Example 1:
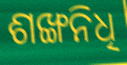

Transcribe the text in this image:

ଶଙ୍ଖନିଧି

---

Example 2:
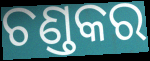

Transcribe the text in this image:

ଚଣ୍ଡକର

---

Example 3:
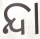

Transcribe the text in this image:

ନ୍ଦା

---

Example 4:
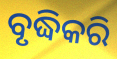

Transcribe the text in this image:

ବୃଦ୍ଧିକରି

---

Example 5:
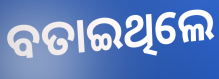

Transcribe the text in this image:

ବତାଇଥିଲେ